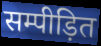
सम्पीड़ित